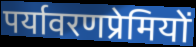
पर्यावरणप्रेमियों